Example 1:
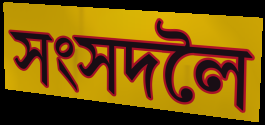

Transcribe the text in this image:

সংসদলৈ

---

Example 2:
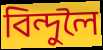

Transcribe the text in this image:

বিন্দুলৈ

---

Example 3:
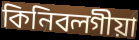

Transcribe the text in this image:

কিনিবলগীয়া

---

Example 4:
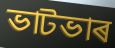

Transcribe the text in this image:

ভাটভাৰ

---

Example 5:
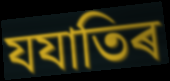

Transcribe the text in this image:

যযাতিৰ